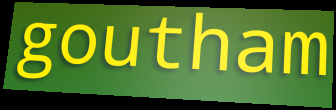
goutham